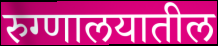
रुग्णालयातील